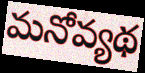
మనోవ్యథ